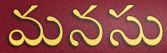
మనసు